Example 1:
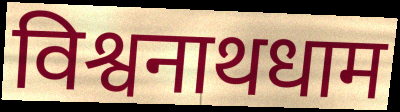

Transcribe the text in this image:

विश्वनाथधाम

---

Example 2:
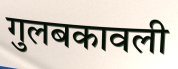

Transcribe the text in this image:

गुलबकावली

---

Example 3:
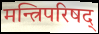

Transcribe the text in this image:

मन्त्रिपरिषद्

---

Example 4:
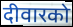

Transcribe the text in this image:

दीवारको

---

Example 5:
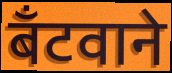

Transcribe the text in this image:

बँटवाने